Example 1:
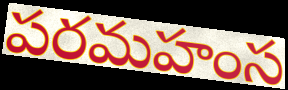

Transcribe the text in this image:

పరమహంస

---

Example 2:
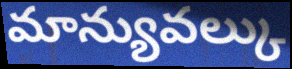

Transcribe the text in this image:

మాన్యువల్కు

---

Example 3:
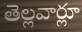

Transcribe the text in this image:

తెల్లవార్లూ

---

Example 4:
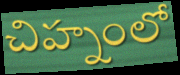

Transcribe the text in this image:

చిహ్నంలో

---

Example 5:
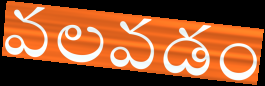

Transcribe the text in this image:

వలవడం